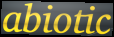
abiotic